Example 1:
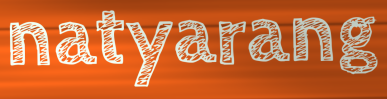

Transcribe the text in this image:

natyarang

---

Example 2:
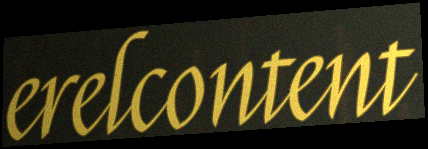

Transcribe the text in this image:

erelcontent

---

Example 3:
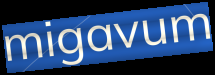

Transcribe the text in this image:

migavum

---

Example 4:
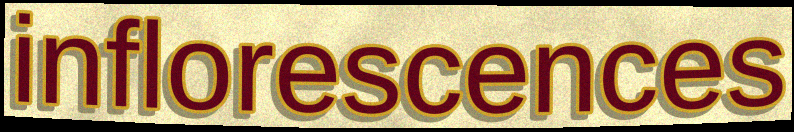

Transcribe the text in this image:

inflorescences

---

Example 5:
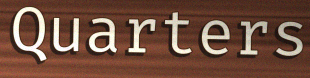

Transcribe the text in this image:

Quarters